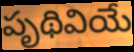
పృథివియే